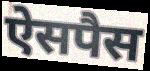
ऐसपैस